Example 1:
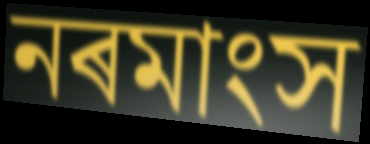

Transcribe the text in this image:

নৰমাংস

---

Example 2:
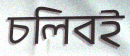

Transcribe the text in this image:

চলিবই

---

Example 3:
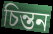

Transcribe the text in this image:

চিন্তন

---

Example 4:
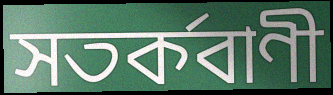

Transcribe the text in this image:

সতৰ্কবাণী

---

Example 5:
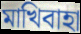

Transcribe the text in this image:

মাখিবাহা